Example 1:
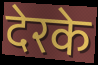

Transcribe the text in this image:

देरके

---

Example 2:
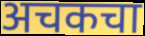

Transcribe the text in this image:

अचकचा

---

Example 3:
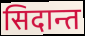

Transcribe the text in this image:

सिदान्त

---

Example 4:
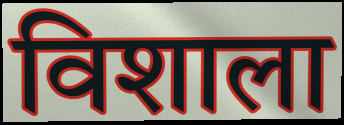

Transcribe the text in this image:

विशाला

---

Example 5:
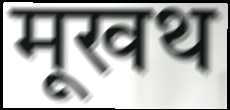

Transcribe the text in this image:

मूखथ